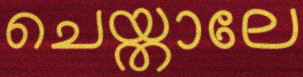
ചെയ്താലേ